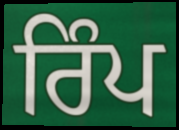
ਰਿੰਪ